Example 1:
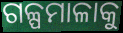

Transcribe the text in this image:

ଗଳ୍ପମାଳାକୁ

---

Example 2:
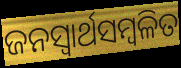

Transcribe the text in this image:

ଜନସ୍ବାର୍ଥସମ୍ବଳିତ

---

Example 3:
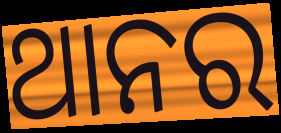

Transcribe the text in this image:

ଥାନର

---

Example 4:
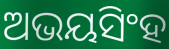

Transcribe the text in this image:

ଅଭୟସିଂହ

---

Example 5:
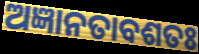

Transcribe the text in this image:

ଅଜ୍ଞାନତାବଶତଃ